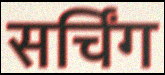
सर्चिंग